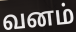
வனம்